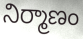
నిర్మాణం